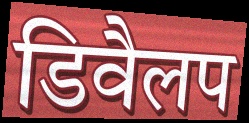
डिवैलप